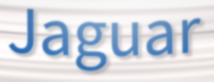
Jaguar